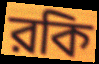
রকি